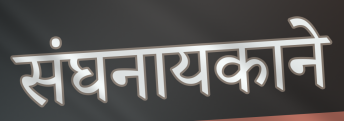
संघनायकाने